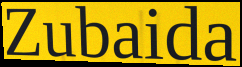
Zubaida